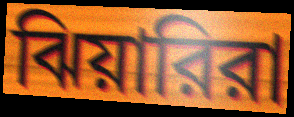
ঝিয়ারিরা